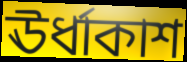
ঊর্ধাকাশ